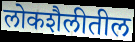
लोकशैलीतील